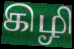
கிழி